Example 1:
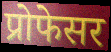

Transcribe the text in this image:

प्रोफेसर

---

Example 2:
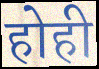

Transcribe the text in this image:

होही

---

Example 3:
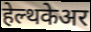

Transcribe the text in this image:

हेल्थकेअर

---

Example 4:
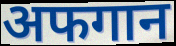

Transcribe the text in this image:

अफगान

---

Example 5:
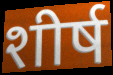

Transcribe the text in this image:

शीर्ष